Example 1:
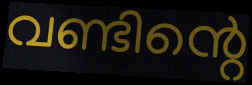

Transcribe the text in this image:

വണ്ടിന്റെ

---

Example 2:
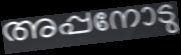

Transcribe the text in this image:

അപ്പനോടു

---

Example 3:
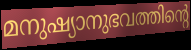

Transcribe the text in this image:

മനുഷ്യാനുഭവത്തിന്റെ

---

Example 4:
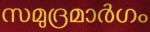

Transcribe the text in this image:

സമുദ്രമാർഗം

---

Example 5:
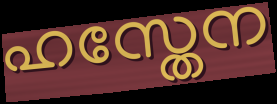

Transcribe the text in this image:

ഹസ്തേന